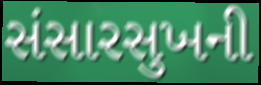
સંસારસુખની